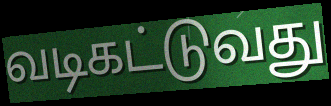
வடிகட்டுவது